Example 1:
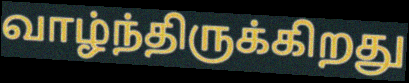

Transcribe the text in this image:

வாழ்ந்திருக்கிறது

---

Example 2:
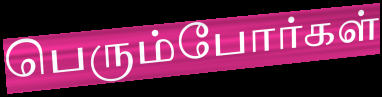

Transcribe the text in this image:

பெரும்போர்கள்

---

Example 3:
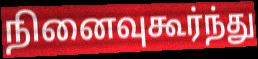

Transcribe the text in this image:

நினைவுகூர்ந்து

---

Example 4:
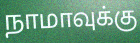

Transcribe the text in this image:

நாமாவுக்கு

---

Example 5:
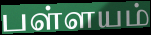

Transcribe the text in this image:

பள்ளயம்